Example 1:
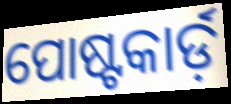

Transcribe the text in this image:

ପୋଷ୍ଟକାର୍ଡ଼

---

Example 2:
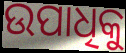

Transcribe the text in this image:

ଉପାଧିକୁ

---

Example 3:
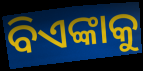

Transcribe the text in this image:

ବିଏଙ୍କାକୁ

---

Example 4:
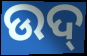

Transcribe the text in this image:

ଉଦ୍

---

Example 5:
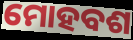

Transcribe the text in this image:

ମୋହବଶ